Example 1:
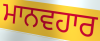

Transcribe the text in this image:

ਮਾਨਵਹਾਰ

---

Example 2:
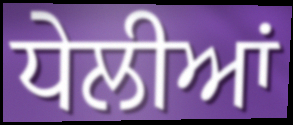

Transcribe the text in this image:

ਧੇਲੀਆਂ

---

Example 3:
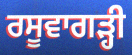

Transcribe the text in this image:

ਰਸੂਵਾਗੜ੍ਹੀ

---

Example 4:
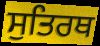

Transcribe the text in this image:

ਸੁਤਿਰਥ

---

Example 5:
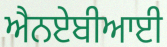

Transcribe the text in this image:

ਐਨਏਬੀਆਈ